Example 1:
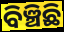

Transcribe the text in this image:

ବିଞ୍ଚିଛି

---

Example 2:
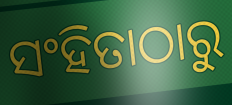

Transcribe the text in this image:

ସଂହିତାଠାରୁ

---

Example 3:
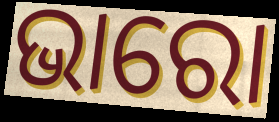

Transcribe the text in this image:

ଭାରୋ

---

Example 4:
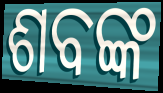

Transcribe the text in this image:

ଶବଙ୍କ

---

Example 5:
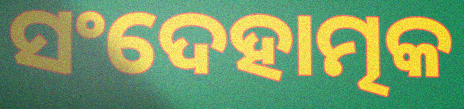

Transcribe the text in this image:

ସଂଦେହାତ୍ମକ